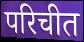
परिचीत